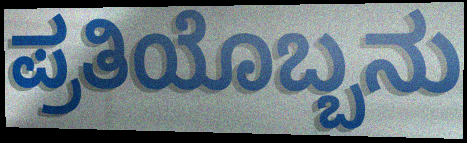
ಪ್ರತಿಯೊಬ್ಬನು